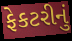
ફેકટરીનું